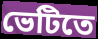
ভেটিতে